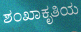
ಶಂಖಾಕೃತಿಯ